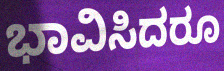
ಭಾವಿಸಿದರೂ